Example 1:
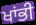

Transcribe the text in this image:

ਖਾਂਭੀ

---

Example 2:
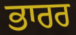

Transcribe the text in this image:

ਭਾਰਰ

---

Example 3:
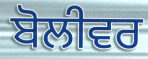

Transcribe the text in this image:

ਬੋਲੀਵਰ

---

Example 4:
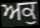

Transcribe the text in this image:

ਅਕੁ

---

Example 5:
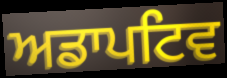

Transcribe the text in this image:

ਅਡਾਪਟਿਵ